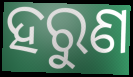
ହରୁଣ